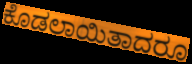
ಕೊಡಲಾಯಿತಾದರೂ